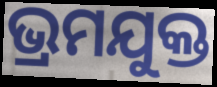
ଭ୍ରମଯୁକ୍ତ